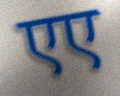
एए